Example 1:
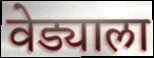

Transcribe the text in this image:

वेड्याला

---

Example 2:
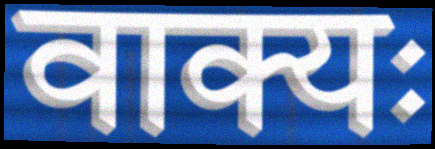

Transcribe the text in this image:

वाक्यः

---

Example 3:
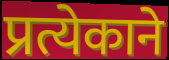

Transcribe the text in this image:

प्रत्येकाने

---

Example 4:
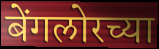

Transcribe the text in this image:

बेंगलोरच्या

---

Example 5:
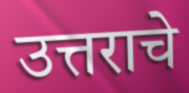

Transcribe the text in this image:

उत्तराचे